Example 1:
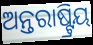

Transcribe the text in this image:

ଅନ୍ତରାଷ୍ଟ୍ରିୟ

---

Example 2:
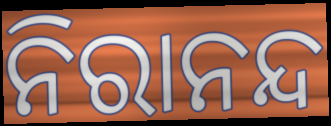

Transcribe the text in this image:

ନିରାନନ୍ଦ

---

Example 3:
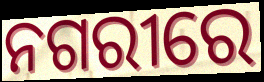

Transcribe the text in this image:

ନଗରୀରେ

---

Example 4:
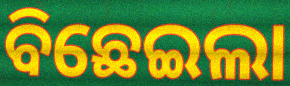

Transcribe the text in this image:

ବିଛେଇଲା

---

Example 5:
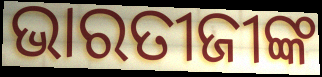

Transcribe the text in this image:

ଭାରତୀଜୀଙ୍କ